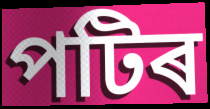
পটিৰ